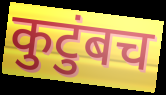
कुटुंबच